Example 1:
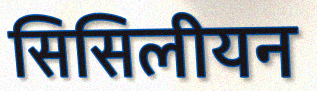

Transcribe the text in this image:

सिसिलीयन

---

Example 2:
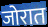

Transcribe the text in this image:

जोरात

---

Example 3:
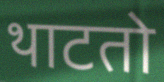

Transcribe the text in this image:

थाटतो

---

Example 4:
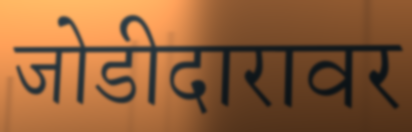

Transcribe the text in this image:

जोडीदारावर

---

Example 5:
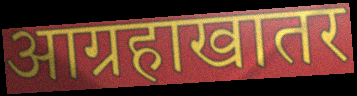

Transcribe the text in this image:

आग्रहाखातर